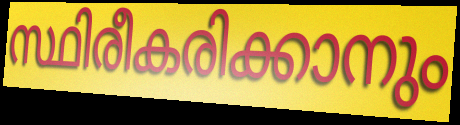
സ്ഥിരീകരിക്കാനും